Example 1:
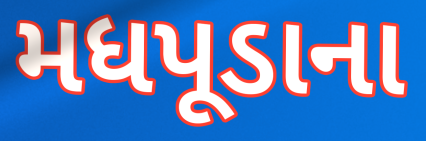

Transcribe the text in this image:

મધપૂડાના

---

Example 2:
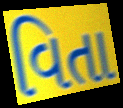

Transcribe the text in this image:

વિતા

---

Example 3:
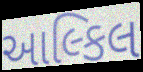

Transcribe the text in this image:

આલ્કિલ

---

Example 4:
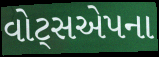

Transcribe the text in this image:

વોટ્સએપના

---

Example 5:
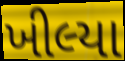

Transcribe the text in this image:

ખીલ્યા